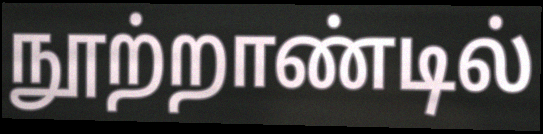
நூற்றாண்டில்